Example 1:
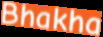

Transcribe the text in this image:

Bhakha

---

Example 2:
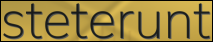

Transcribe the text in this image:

steterunt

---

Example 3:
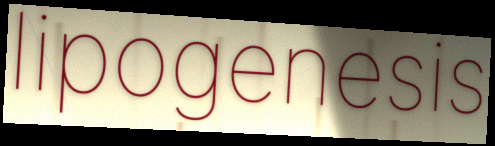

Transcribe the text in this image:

lipogenesis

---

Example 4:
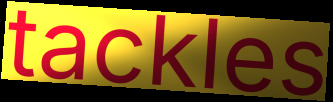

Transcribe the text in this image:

tackles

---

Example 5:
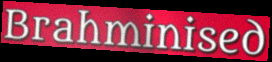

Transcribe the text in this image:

Brahminised